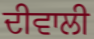
ਦੀਵਾਲੀ